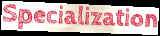
Specialization